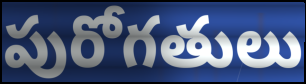
పురోగతులు